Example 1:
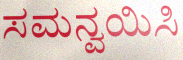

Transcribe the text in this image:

ಸಮನ್ವಯಿಸಿ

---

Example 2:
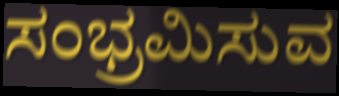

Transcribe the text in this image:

ಸಂಭ್ರಮಿಸುವ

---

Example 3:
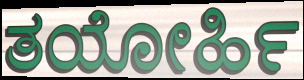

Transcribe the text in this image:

ತಯೋರ್ಹಿ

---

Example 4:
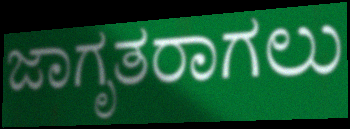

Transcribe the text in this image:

ಜಾಗೃತರಾಗಲು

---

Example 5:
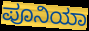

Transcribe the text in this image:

ಪೂನಿಯಾ